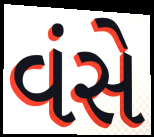
વંસે